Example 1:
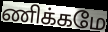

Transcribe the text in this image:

ணிக்கமே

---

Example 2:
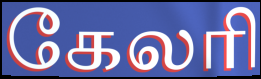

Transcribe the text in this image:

கேலரி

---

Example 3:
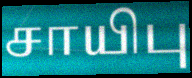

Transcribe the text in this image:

சாயிபு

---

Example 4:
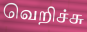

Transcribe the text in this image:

வெறிச்சு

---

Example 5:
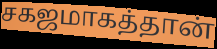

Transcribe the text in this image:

சகஜமாகத்தான்